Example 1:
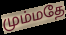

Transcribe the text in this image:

மும்மதே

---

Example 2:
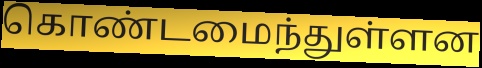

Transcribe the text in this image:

கொண்டமைந்துள்ளன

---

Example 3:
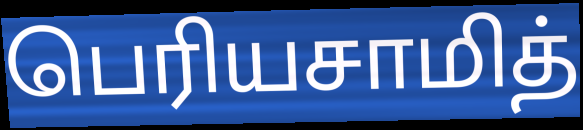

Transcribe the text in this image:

பெரியசாமித்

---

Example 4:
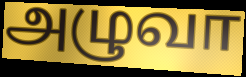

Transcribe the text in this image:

அழுவா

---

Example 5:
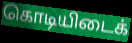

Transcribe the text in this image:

கொடியிடைக்